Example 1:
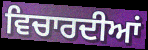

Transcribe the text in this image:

ਵਿਚਾਰਦੀਆਂ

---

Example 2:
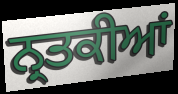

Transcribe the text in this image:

ਨ੍ਰਤਕੀਆਂ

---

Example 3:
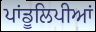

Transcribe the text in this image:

ਪਾਂਡੂਲਿਪੀਆਂ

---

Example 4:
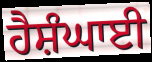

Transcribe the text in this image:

ਹੈਸ਼ੰਘਾਈ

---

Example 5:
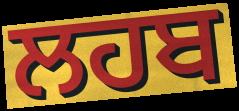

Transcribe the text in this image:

ਲਹਬ